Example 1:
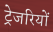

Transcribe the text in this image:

ट्रेजरियों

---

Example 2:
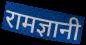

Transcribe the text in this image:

रामज्ञानी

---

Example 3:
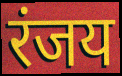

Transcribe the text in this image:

रंजय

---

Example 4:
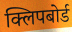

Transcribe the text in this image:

क्लिपबोर्ड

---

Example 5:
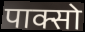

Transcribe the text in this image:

पाक्सो